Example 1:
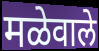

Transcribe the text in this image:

मळेवाले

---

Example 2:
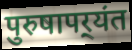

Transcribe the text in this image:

पुरुषापर्यंत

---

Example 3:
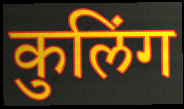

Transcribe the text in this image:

कुलिंग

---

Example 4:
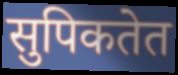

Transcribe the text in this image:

सुपिकतेत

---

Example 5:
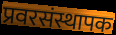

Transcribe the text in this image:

प्रवरसंस्थापक